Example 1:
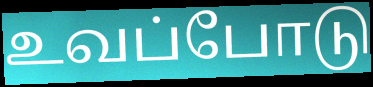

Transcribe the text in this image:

உவப்போடு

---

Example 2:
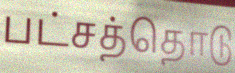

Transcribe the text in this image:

பட்சத்தொடு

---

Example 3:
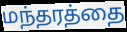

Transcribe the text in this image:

மந்தரத்தை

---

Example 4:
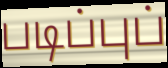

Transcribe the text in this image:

படிப்புப்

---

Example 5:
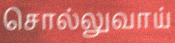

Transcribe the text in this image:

சொல்லுவாய்